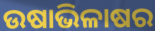
ଉଷାଭିଳାଷର